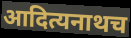
आदित्यनाथच